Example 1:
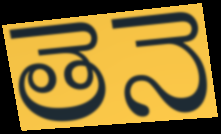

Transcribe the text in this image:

తెనె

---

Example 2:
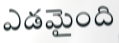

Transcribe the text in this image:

ఎడమైంది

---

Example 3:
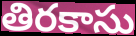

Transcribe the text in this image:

తిరకాసు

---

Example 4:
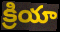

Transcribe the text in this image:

క్రియా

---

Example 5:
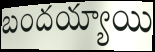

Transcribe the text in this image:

బందయ్యాయి